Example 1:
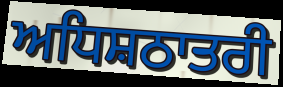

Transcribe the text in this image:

ਅਧਿਸ਼ਠਾਤਰੀ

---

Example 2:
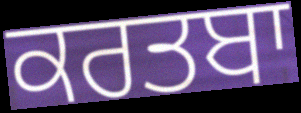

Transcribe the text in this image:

ਕਰਤਬਾ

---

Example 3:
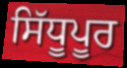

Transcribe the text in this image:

ਸਿੱਧੂਪੂਰ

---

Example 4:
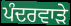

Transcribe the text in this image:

ਪੰਦਰਵਾੜੇ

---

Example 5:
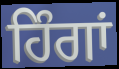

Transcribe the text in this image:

ਹਿੰਗਾਂ